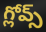
గ్లోవ్స్